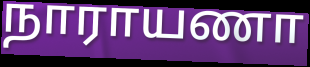
நாராயணா